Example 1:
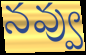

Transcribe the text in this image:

నవ్వు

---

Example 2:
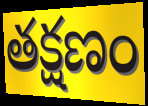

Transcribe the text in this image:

తక్షణం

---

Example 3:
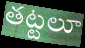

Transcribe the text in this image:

తట్టలూ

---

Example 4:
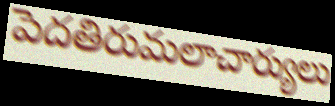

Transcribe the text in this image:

పెదతిరుమలాచార్యులు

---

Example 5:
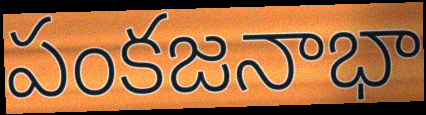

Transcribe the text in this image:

పంకజనాభా